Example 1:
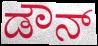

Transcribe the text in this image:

ಡೌನ್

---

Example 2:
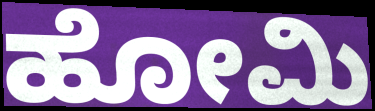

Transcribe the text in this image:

ಹೋಮಿ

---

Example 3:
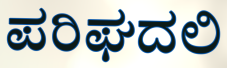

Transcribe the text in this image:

ಪರಿಘದಲಿ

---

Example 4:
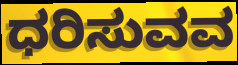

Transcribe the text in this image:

ಧರಿಸುವವ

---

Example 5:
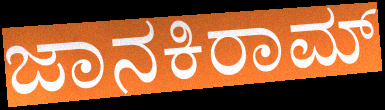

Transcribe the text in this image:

ಜಾನಕಿರಾಮ್